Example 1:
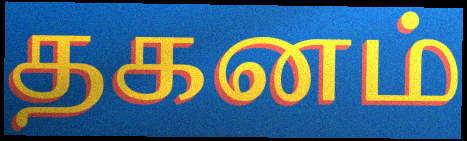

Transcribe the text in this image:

தகனம்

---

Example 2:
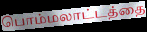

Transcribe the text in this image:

பொம்மலாட்டத்தை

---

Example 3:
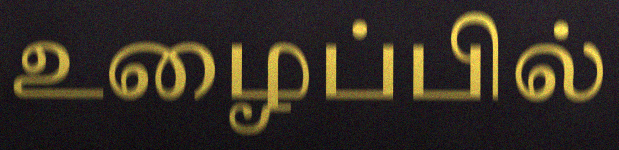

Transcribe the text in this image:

உழைப்பில்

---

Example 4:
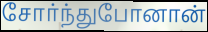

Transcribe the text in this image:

சோர்ந்துபோனான்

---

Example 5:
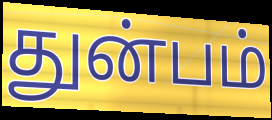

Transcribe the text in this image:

துன்பம்